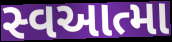
સ્વઆત્મા